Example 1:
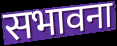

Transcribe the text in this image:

सभावना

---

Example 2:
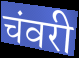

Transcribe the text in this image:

चंवरी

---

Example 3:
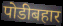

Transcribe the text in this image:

पोडीबहार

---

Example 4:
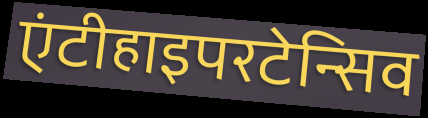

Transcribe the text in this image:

एंटीहाइपरटेन्सिव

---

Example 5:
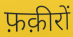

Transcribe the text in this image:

फ़क़ीरों